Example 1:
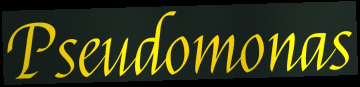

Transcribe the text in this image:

Pseudomonas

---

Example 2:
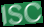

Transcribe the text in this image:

ISC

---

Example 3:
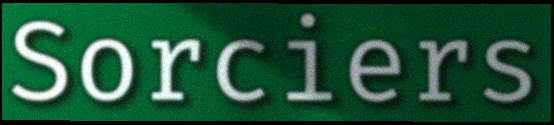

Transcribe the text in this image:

Sorciers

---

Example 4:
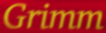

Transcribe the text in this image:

Grimm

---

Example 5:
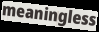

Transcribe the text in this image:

meaningless